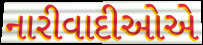
નારીવાદીઓએ